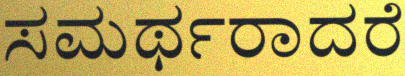
ಸಮರ್ಥರಾದರೆ